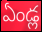
ఏండ్ల